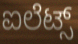
ಐಲೆಟ್ಸ್